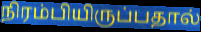
நிரம்பியிருப்பதால்